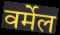
वर्मेल